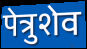
पेत्रुशेव